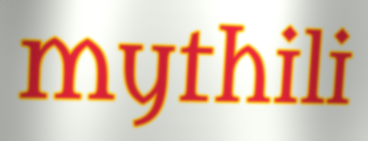
mythili